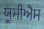
ਯੂਸੀਐਸ